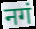
नगं